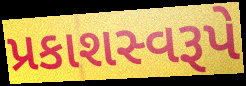
પ્રકાશસ્વરૂપે